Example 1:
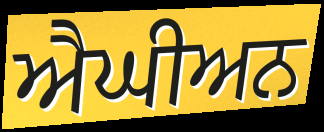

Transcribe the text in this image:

ਐਘੀਅਨ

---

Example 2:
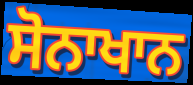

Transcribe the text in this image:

ਸੋਨਾਖਾਨ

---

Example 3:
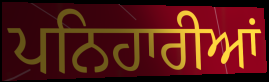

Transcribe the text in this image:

ਪਨਿਹਾਰੀਆਂ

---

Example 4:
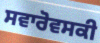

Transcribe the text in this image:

ਸਵਾਰੋਵਸਕੀ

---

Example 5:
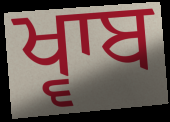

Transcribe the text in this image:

ਖ੍ਵਾਬ